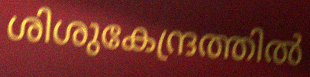
ശിശുകേന്ദ്രത്തിൽ